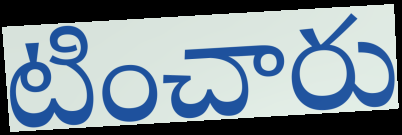
టించారు